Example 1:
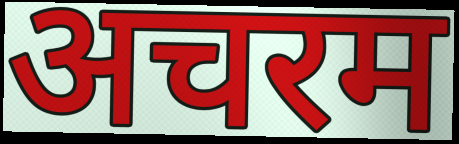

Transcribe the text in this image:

अचरम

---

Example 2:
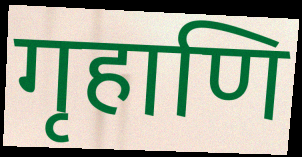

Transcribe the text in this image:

गृहाणि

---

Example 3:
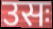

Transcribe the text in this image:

उसः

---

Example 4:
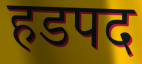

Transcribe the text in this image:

हडपद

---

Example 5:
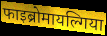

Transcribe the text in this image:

फाइब्रोमायल्गिया